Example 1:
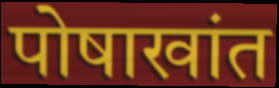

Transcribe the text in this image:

पोषाखांत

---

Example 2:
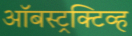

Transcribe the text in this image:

ऑबस्ट्रक्टिव्ह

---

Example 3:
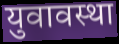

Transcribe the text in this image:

युवावस्था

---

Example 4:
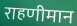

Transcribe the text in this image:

राहणीमान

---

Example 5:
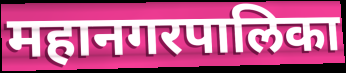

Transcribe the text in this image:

महानगरपालिका